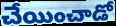
చేయించాడో